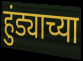
हुंड्याच्या